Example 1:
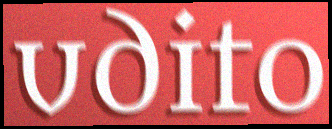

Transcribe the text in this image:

udito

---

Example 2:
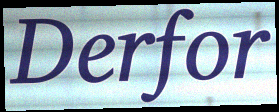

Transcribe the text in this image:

Derfor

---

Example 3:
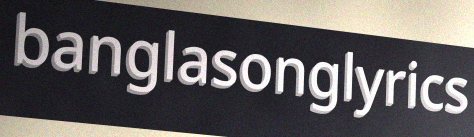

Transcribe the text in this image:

banglasonglyrics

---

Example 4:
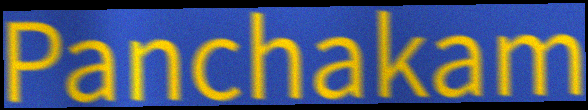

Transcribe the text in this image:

Panchakam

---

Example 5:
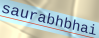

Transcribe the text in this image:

saurabhbhai